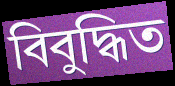
বিবুদ্ধিত